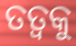
ତତ୍ୱକୁ